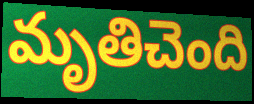
మృతిచెంది